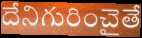
దేనిగురించైతే